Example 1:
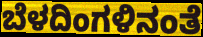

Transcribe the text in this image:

ಬೆಳದಿಂಗಳಿನಂತೆ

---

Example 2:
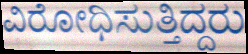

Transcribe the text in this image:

ವಿರೋಧಿಸುತ್ತಿದ್ದರು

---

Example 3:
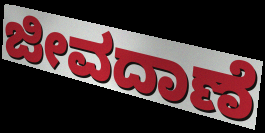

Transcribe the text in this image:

ಜೀವದಾಣೆ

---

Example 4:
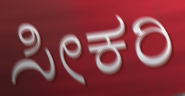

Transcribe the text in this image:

ಸೀಕರಿ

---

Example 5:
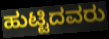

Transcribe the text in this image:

ಹುಟ್ಟಿದವರು